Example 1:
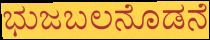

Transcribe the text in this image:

ಭುಜಬಲನೊಡನೆ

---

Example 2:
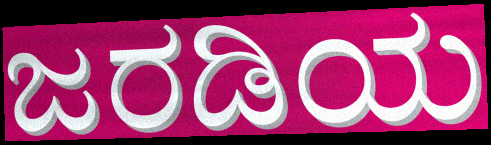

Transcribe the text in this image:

ಜರಡಿಯ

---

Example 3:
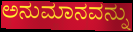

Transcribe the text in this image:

ಅನುಮಾನವನ್ನು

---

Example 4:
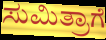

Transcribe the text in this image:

ಸುಮಿತ್ರಾಗೆ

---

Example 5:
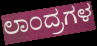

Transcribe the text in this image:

ಲಾಂದ್ರಗಳ